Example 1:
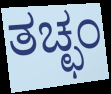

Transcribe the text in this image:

ತಚ್ಛಂ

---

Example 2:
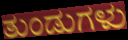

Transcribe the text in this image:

ತುಂಡುಗಳು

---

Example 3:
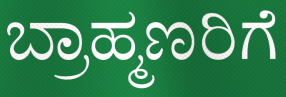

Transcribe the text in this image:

ಬ್ರಾಹ್ಮಣರಿಗೆ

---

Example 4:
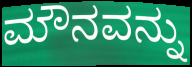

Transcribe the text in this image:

ಮೌನವನ್ನು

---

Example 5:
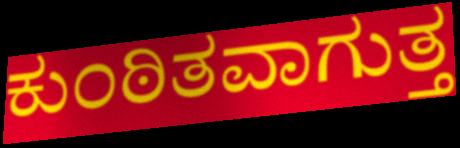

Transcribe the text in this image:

ಕುಂಠಿತವಾಗುತ್ತ